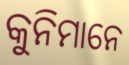
କୁନିମାନେ